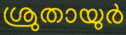
ശ്രുതായുർ